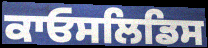
ਕਾਓਸਲਿਡਿਸ